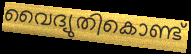
വൈദ്യുതികൊണ്ട്